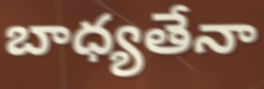
బాధ్యతేనా